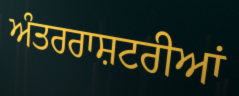
ਅੰਤਰਰਾਸ਼ਟਰੀਆਂ